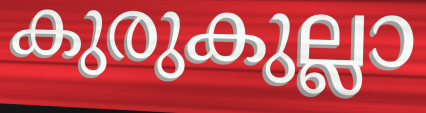
കുരുകുല്ലാ